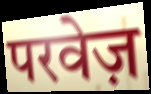
परवेज़